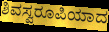
ಶಿವಸ್ವರೂಪಿಯಾದ